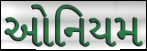
ઓનિયમ